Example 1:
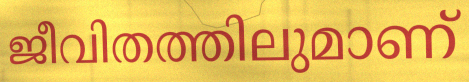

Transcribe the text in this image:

ജീവിതത്തിലുമാണ്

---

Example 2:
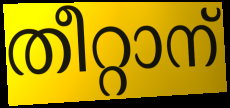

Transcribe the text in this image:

തീറ്റാന്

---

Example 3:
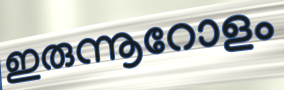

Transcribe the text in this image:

ഇരുന്നൂറോളം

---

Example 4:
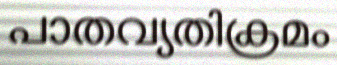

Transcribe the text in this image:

പാതവ്യതിക്രമം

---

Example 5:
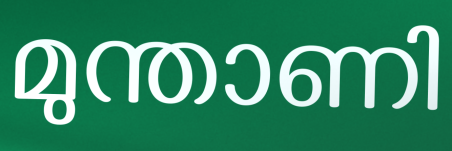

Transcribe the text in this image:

മുന്താണി